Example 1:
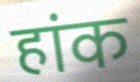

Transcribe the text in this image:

हांक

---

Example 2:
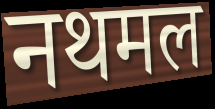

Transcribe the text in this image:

नथमल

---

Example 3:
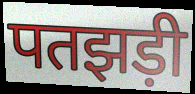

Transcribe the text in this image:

पतझड़ी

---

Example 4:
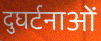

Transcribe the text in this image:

दुघर्टनाओं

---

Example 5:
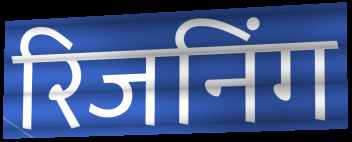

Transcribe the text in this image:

रिजनिंग